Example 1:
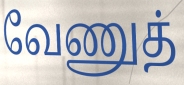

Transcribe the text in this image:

வேணுத்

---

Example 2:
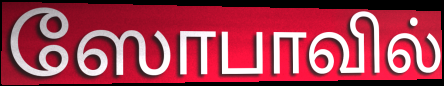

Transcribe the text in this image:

ஸோபாவில்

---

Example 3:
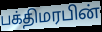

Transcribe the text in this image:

பக்திமரபின்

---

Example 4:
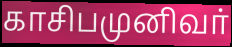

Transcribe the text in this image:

காசிபமுனிவர்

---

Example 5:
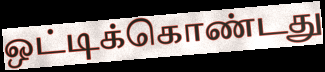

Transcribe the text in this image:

ஒட்டிக்கொண்டது